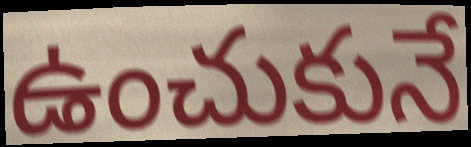
ఉంచుకునే